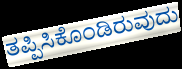
ತಪ್ಪಿಸಿಕೊಂಡಿರುವುದು